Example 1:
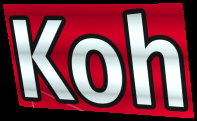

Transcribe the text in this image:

Koh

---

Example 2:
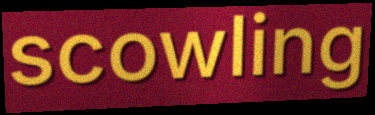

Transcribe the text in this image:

scowling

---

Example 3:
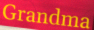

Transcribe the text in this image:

Grandma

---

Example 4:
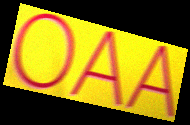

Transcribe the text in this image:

OAA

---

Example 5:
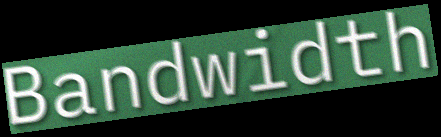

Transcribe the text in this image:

Bandwidth